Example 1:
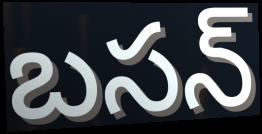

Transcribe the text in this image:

బసన్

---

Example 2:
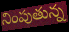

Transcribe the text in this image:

నింపుతున్న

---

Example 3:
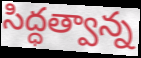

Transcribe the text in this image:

సిద్ధత్వాన్న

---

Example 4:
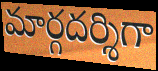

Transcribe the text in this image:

మార్గదర్శిగా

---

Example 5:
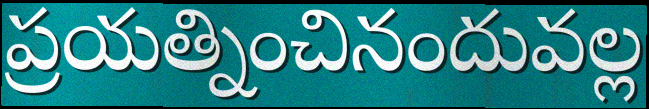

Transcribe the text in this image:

ప్రయత్నించినందువల్ల